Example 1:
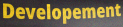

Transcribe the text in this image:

Developement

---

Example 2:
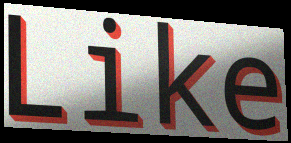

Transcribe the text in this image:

Like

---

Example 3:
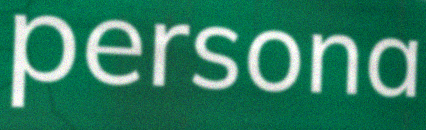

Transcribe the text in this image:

persona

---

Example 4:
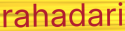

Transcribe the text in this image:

rahadari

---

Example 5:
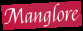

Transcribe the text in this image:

Manglore